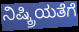
ನಿಷ್ಕ್ರಿಯತೆಗೆ